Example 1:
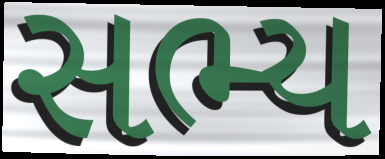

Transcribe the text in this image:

સભ્ય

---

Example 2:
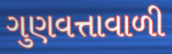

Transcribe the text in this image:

ગુણવત્તાવાળી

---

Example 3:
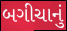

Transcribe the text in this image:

બગીચાનું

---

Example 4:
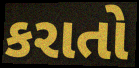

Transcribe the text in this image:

કરાતો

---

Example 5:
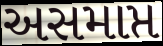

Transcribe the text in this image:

અસમાપ્ત